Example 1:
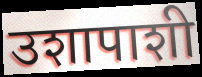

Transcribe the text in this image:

उशापाशी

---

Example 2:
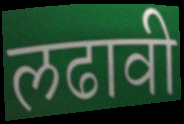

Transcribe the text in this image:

लढावी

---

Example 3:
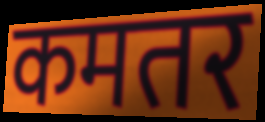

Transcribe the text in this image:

कमतर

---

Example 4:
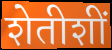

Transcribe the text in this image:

शेतीशीं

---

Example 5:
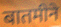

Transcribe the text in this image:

बातमीने